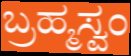
ಬ್ರಹ್ಮಸ್ವಂ